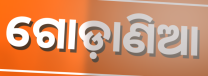
ଗୋଡ଼ାଣିଆ